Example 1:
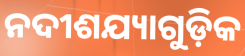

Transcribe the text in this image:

ନଦୀଶଯ୍ୟାଗୁଡ଼ିକ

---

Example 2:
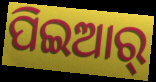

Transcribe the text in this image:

ପିଇଆର୍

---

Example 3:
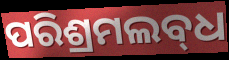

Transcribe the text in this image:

ପରିଶ୍ରମଲବ୍‍ଧ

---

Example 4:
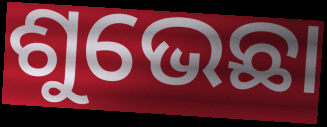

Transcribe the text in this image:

ଶୁଭେଛା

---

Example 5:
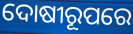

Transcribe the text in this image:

ଦୋଷୀରୂପରେ